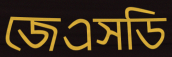
জেএসডি